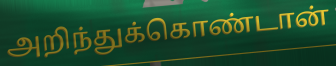
அறிந்துக்கொண்டான்